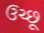
ઉચ્છૂ